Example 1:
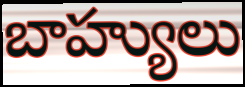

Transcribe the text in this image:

బాహ్యులు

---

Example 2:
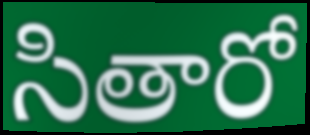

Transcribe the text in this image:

సితారో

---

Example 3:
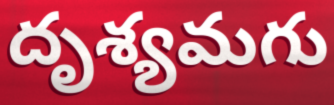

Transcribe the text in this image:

దృశ్యమగు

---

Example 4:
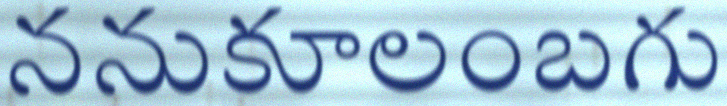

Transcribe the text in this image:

ననుకూలంబగు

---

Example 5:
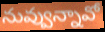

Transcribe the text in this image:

నువ్వున్నావో